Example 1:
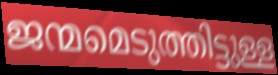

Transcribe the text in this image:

ജന്മമെടുത്തിട്ടുള്ള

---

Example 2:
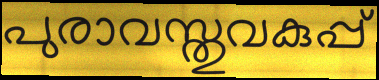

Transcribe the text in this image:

പുരാവസ്തുവകുപ്പ്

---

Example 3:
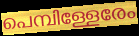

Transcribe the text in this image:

പെമ്പിള്ളേരേം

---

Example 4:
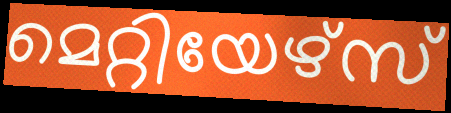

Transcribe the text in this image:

മെറ്റിയേഴ്സ്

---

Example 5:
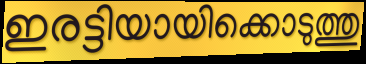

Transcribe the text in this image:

ഇരട്ടിയായിക്കൊടുത്തു